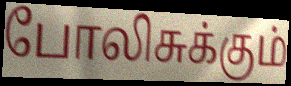
போலிசுக்கும்